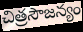
చిత్రసౌజన్యం